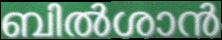
ബിൽശാൻ